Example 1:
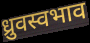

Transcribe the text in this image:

ध्रुवस्वभाव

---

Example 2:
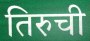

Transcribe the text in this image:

तिरुची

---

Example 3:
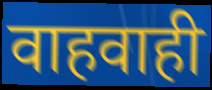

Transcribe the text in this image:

वाहवाही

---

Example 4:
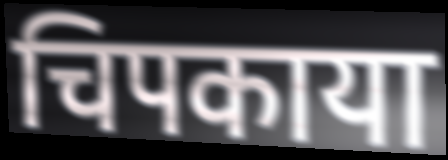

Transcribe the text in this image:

चिपकाया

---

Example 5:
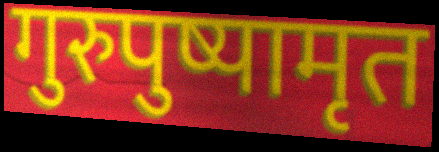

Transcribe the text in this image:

गुरुपुष्यामृत